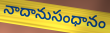
నాదానుసంధానం